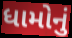
ધામોનું